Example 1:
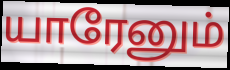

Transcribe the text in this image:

யாரேனும்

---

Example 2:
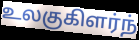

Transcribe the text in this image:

உலகுகிளர்ந்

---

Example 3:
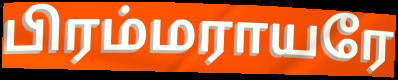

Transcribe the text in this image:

பிரம்மராயரே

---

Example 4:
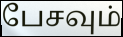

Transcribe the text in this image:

பேசவும்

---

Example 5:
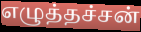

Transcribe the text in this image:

எழுத்தச்சன்